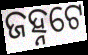
ଜହ୍ନଟେ